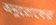
অনুরোধের